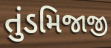
તુંડમિજાજી